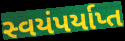
સ્વયંપર્યાપ્ત